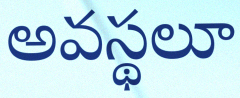
అవస్థలూ